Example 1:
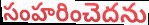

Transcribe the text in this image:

సంహరించెదను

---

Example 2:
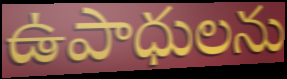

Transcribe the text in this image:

ఉపాధులను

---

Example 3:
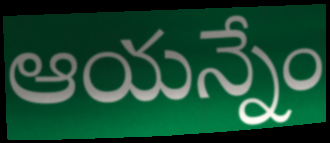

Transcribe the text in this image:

ఆయన్నేం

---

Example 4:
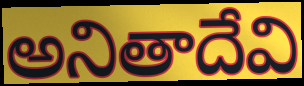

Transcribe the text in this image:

అనితాదేవి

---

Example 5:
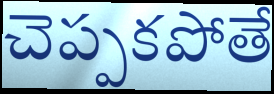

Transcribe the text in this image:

చెప్పకపోతే